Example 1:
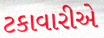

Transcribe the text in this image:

ટકાવારીએ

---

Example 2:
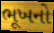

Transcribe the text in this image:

ભૂખનો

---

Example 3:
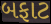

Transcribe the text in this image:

બફાટ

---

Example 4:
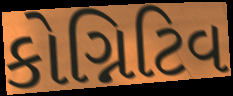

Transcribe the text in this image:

કોગ્નિટિવ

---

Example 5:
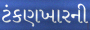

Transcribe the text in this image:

ટંકણખારની